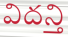
విదన్తి